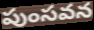
పుంసవన